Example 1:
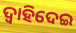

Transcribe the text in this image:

ଦ୍ୱାହିଦେଇ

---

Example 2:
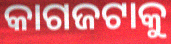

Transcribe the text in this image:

କାଗଜଟାକୁ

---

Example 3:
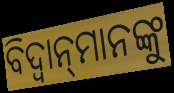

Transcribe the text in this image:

ବିଦ୍ଵାନ୍‌ମାନଙ୍କୁ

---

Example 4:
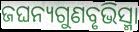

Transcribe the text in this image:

ଜଘନ୍ୟଗୁଣବୃଭିସ୍ମା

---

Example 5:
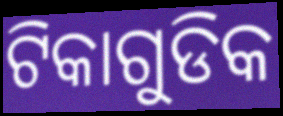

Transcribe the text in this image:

ଟିକାଗୁଡିକ